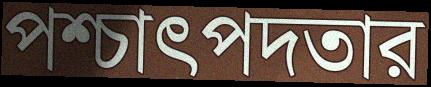
পশ্চাৎপদতার